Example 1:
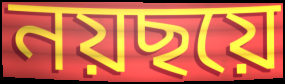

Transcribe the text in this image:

নয়ছয়ে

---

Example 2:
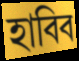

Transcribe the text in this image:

হাবিব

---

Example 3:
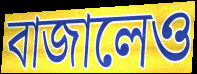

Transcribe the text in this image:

বাজালেও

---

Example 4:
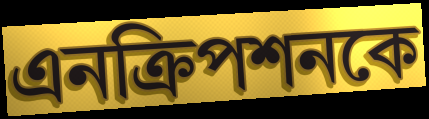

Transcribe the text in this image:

এনক্রিপশনকে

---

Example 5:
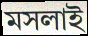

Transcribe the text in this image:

মসলাই